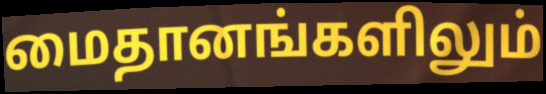
மைதானங்களிலும்